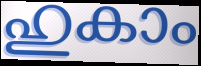
ഹുകാം